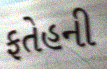
ફતેહની